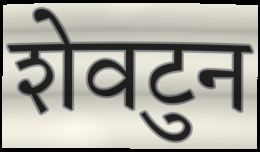
शेवटुन